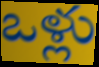
ఒళ్లు